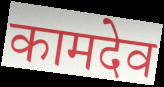
कामदेव